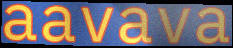
aavava